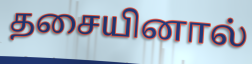
தசையினால்